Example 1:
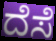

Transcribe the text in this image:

ದೆಸೆ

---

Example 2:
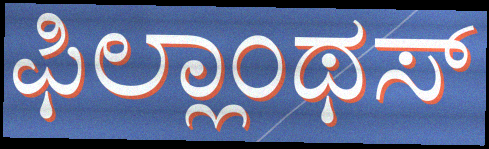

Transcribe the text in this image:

ಫಿಲ್ಲಾಂಥಸ್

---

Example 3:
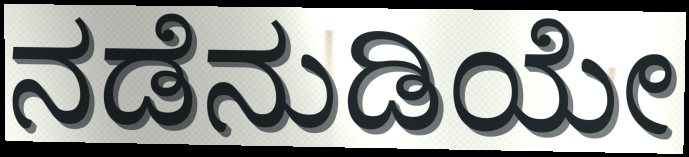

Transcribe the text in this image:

ನಡೆನುಡಿಯೇ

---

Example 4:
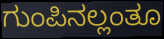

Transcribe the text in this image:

ಗುಂಪಿನಲ್ಲಂತೂ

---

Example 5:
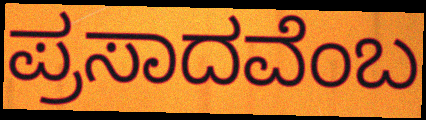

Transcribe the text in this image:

ಪ್ರಸಾದವೆಂಬ